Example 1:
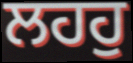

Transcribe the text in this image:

ਲਹਹੁ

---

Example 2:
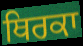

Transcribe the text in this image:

ਥਿਰਕਾ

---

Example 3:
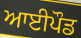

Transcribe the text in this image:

ਆਈਪੌਡ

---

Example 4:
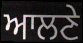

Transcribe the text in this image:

ਆਲਣੇ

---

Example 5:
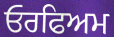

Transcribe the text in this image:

ਓਰਫਿਅਮ